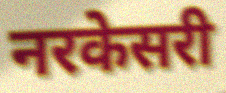
नरकेसरी